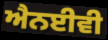
ਐਨਈਵੀ